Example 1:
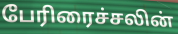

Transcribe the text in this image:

பேரிரைச்சலின்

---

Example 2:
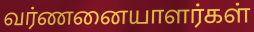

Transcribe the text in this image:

வர்ணனையாளர்கள்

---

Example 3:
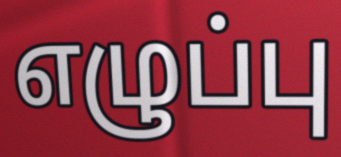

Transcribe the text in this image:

எழுப்பு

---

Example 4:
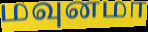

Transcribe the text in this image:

மவுனமா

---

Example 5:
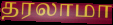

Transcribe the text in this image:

தரலாமா